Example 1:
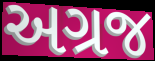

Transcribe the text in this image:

અગ્રજ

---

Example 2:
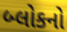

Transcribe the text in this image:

બ્લોકનો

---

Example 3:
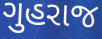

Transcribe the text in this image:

ગુહરાજ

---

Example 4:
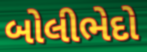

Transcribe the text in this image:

બોલીભેદો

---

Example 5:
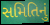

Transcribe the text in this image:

સમિતિનું